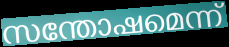
സന്തോഷമെന്ന്